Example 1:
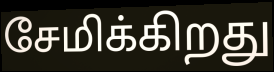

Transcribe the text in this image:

சேமிக்கிறது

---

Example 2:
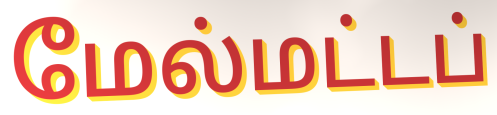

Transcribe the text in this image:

மேல்மட்டப்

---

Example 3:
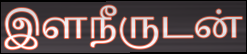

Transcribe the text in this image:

இளநீருடன்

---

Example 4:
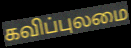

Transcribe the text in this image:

கவிப்புலமை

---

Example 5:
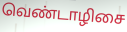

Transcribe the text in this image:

வெண்டாழிசை